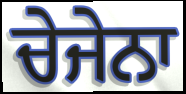
ਚੇਜੇਨਾ